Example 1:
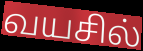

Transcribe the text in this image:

வயசில்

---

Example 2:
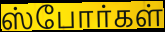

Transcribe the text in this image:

ஸ்போர்கள்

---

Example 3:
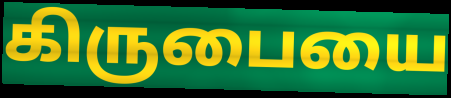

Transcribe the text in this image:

கிருபையை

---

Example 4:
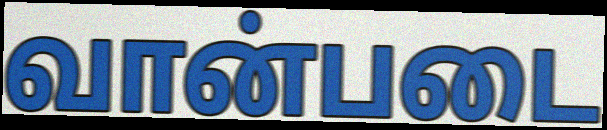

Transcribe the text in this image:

வான்படை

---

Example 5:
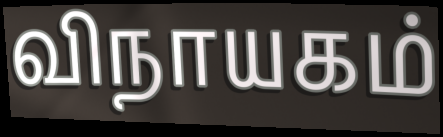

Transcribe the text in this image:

விநாயகம்